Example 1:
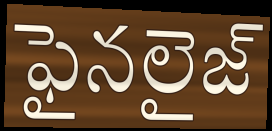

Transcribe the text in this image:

ఫైనలైజ్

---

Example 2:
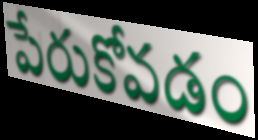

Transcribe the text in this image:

పేరుకోవడం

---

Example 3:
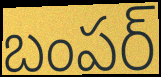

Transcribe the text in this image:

బంపర్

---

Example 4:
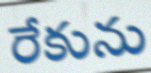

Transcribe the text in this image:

రేకును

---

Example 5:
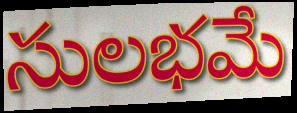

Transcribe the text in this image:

సులభమే